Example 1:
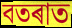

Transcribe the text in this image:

বতৰাত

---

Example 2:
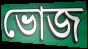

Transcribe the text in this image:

ভোজ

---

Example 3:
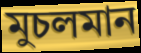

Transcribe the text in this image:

মুচলমান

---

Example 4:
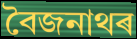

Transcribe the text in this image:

বৈজনাথৰ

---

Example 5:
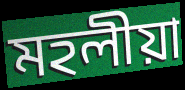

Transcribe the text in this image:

মহলীয়া